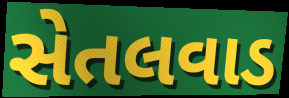
સેતલવાડ